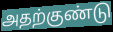
அதற்குண்டு